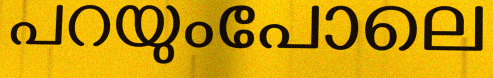
പറയുംപോലെ